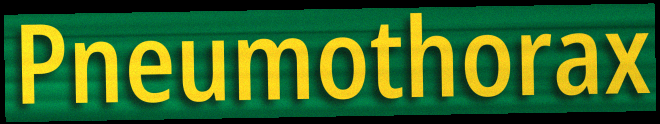
Pneumothorax